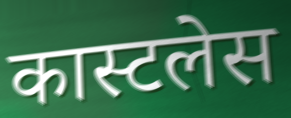
कास्टलेस